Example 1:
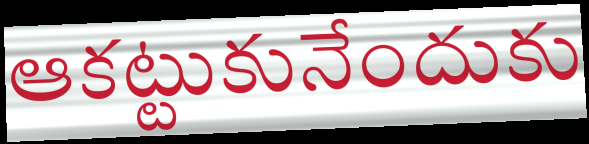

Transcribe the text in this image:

ఆకట్టుకునేందుకు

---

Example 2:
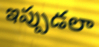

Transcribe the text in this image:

ఇప్పుడలా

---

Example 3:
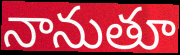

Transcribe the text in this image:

నానుతూ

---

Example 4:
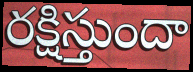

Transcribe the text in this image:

రక్షిస్తుందా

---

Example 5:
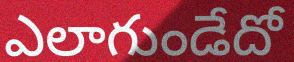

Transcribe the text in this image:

ఎలాగుండేదో